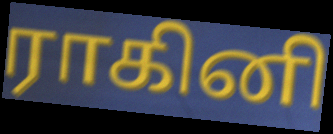
ராகினி